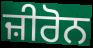
ਜ਼ੀਰੋਨ